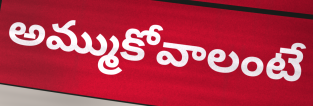
అమ్ముకోవాలంటే